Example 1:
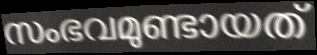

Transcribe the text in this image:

സംഭവമുണ്ടായത്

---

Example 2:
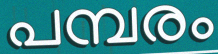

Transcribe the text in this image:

പമ്പരം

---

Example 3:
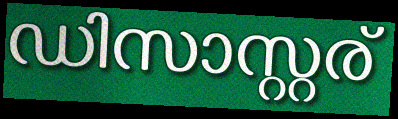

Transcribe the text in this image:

ഡിസാസ്റ്റര്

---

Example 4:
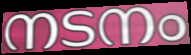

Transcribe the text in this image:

നടനം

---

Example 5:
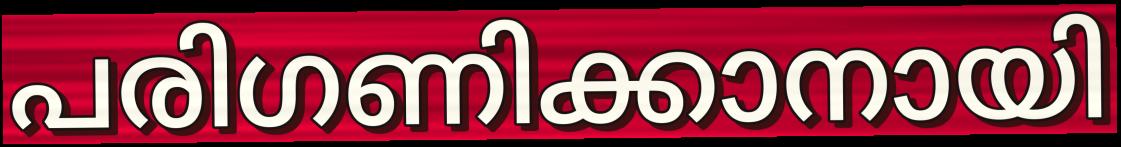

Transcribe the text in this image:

പരിഗണിക്കാനായി